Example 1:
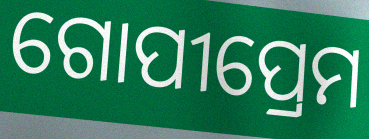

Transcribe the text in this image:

ଗୋପୀପ୍ରେମ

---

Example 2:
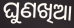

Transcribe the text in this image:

ଘୁଣଖିଆ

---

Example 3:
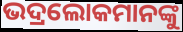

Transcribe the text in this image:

ଭଦ୍ରଲୋକମାନଙ୍କୁ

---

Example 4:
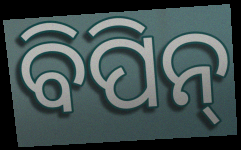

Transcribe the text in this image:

ବିପିନ୍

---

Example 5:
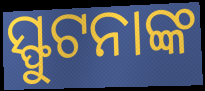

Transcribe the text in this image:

ସ୍ଫୁଟନାଙ୍କ